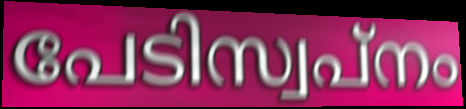
പേടിസ്വപ്നം